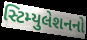
સ્ટિમ્યુલેશનનો